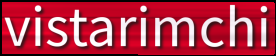
vistarimchi